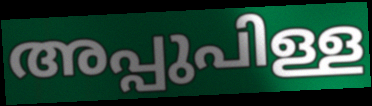
അപ്പുപിള്ള